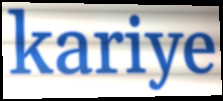
kariye